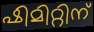
ഷിമിറ്റിന്